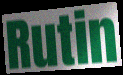
Rutin